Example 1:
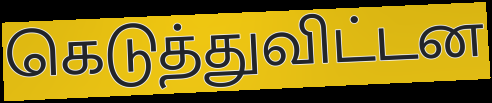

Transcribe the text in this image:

கெடுத்துவிட்டன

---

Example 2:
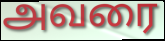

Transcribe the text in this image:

அவரை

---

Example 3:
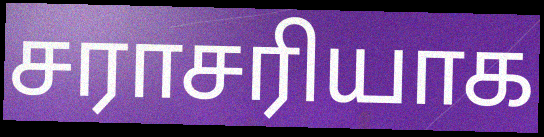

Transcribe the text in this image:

சராசரியாக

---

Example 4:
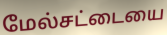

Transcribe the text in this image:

மேல்சட்டையை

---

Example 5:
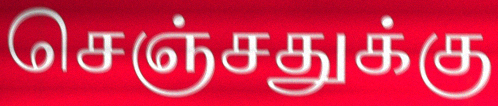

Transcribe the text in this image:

செஞ்சதுக்கு